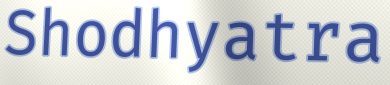
Shodhyatra